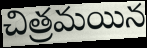
చిత్రమయిన